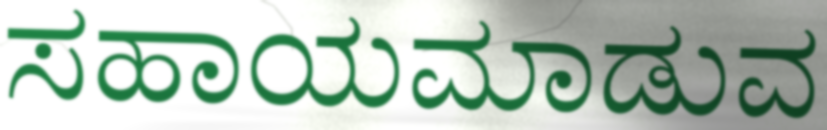
ಸಹಾಯಮಾಡುವ